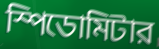
স্পিডোমিটার